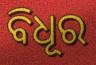
ବିଧୂର